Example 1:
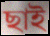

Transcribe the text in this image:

ছাই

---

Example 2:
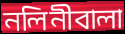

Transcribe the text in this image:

নলিনীবালা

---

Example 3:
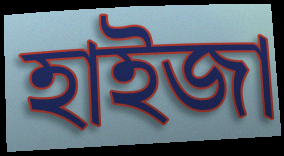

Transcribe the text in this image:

হাইজা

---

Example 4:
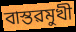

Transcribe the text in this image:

বাস্তৱমুখী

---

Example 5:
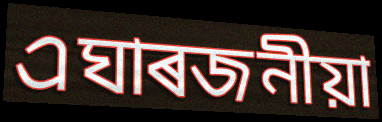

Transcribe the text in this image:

এঘাৰজনীয়া